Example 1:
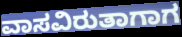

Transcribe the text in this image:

ವಾಸವಿರುತಾಗಾಗ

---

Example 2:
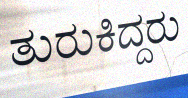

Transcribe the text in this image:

ತುರುಕಿದ್ದರು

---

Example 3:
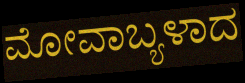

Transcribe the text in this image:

ಮೋವಾಬ್ಯಳಾದ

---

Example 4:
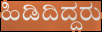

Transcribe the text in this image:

ಹಿಡಿದಿದ್ದರು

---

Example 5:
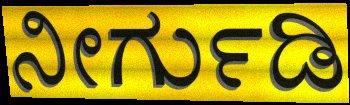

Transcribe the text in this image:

ನೀರ್ಗುಡಿ